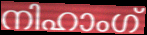
നിഹാംഗ്